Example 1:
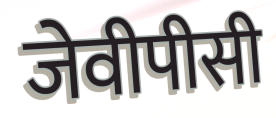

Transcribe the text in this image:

जेवीपीसी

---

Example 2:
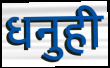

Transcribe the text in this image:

धनुही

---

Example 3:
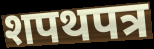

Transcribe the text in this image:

शपथपत्र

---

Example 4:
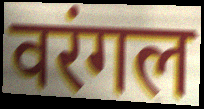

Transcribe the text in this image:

वरंगल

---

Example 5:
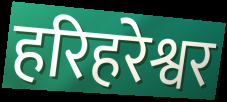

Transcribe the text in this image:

हरिहरेश्वर